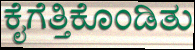
ಕೈಗೆತ್ತಿಕೊಂಡಿತು